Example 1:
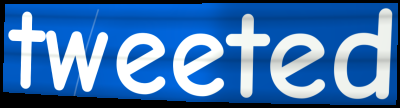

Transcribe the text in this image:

tweeted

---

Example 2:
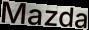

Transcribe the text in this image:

Mazda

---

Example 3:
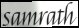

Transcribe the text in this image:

samrath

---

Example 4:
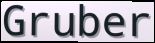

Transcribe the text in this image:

Gruber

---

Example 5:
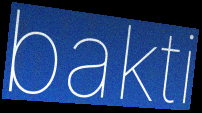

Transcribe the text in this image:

bakti